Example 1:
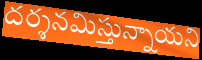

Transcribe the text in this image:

దర్శనమిస్తున్నాయని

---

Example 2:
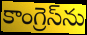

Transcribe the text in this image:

కాంగ్రెస్‌ను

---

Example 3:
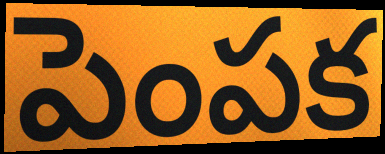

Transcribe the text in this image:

పెంపక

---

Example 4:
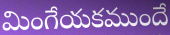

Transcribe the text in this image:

మింగేయకముందే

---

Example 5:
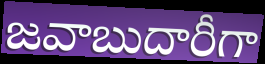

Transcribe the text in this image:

జవాబుదారీగా